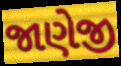
જાણેજી